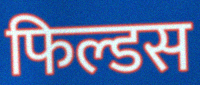
फिल्डस